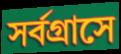
সর্বগ্রাসে